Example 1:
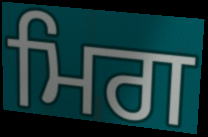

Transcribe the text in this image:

ਮਿਗ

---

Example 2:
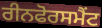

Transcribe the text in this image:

ਰੀਨਫੋਰਸਮੈਂਟ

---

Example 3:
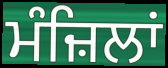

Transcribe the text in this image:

ਮੰਜ਼ਿਲਾਂ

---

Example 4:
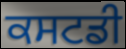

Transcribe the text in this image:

ਕਸਟਡੀ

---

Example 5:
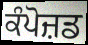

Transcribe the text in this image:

ਕੰਪੋਜ਼ਡ